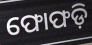
ଫୋଫଡ଼ି